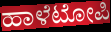
ಹಾಳೆಟೋಪಿ